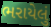
ભરાયેલું